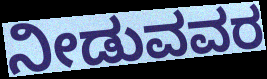
ನೀಡುವವರ